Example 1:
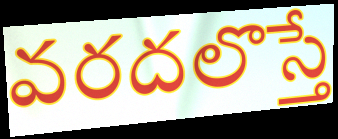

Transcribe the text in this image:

వరదలొస్తే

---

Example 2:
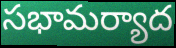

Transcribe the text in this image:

సభామర్యాద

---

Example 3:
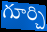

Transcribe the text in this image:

గూర్చి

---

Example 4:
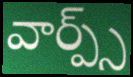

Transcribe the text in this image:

వార్ప్స్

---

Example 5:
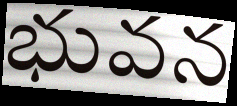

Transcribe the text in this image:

భువన